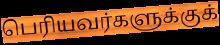
பெரியவர்களுக்குக்